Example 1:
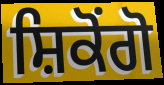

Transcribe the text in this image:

ਸ਼ਿਕੋਂਗੋ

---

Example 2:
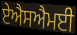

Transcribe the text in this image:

ਏਐਸਐਮਈ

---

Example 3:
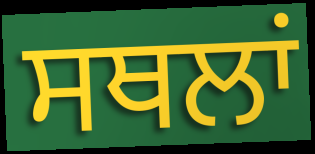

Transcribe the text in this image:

ਸਥਲਾਂ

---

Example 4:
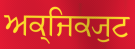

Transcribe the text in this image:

ਅਕ੍ਜਿਕ੍ਯੁਟ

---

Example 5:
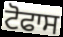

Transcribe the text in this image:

ਟੋਫਾਸ